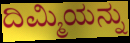
ದಿಮ್ಮಿಯನ್ನು